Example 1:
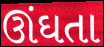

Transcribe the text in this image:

ઊંઘતા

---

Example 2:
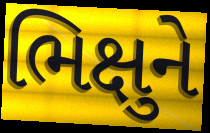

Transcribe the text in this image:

ભિક્ષુને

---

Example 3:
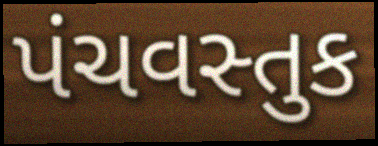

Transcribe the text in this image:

પંચવસ્તુક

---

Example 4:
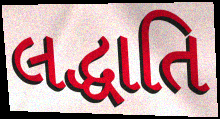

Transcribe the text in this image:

લદ્ધાતિ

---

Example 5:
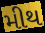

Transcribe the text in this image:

મીથ